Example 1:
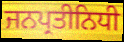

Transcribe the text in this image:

ਜਨਪ੍ਰਤੀਨਿਧੀ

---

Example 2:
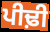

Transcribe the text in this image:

ਪੀਢ਼ੀ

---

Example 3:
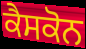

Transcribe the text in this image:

ਕੈਸਕੋਨ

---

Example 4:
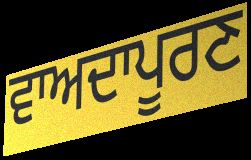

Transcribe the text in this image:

ਵਾਅਦਾਪੂਰਣ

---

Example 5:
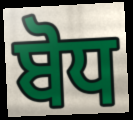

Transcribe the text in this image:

ਬੋਧ